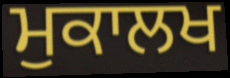
ਮੁਕਾਲਖ